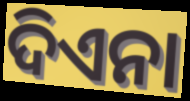
ଦିଏନା